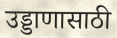
उड्डाणासाठी